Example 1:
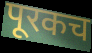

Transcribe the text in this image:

पूरकच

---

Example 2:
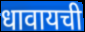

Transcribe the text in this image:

धावायची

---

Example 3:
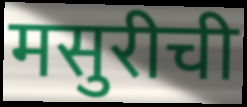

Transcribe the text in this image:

मसुरीची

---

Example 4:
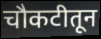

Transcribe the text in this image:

चौकटीतून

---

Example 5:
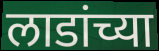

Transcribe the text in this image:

लाडांच्या